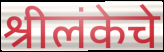
श्रीलंकेचे